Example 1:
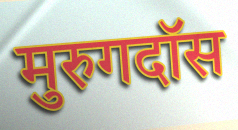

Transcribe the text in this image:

मुरुगदॉस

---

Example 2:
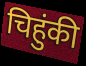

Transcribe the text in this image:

चिहुंकी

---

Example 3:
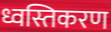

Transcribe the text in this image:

ध्वस्तिकरण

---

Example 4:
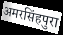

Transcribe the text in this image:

अमरसिंहपुरा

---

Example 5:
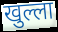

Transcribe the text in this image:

खुल्ला